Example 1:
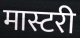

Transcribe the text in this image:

मास्टरी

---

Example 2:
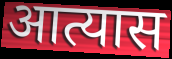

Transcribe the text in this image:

आत्यास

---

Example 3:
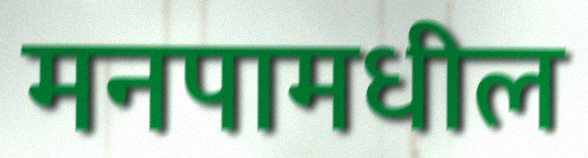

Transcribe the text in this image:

मनपामधील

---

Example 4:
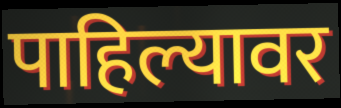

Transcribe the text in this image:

पाहिल्‍यावर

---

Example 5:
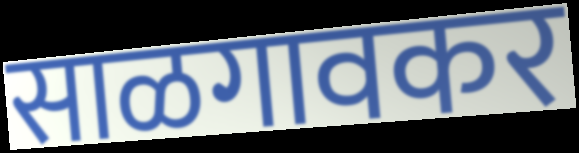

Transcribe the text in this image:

साळगावकर